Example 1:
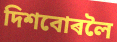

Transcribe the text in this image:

দিশবোৰলৈ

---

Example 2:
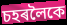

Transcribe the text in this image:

চহৰলৈকে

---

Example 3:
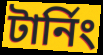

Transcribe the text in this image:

টাৰ্নিং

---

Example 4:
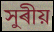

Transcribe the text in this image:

সুৰীয়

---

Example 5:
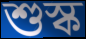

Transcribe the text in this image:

শুস্ক